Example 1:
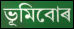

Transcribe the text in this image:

ভূমিবোৰ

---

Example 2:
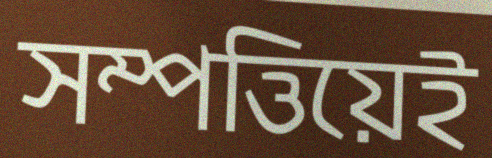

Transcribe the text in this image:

সম্পত্তিয়েই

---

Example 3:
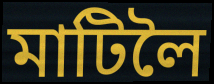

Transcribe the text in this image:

মাটিলৈ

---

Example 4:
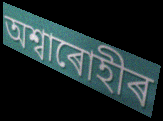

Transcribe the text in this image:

অশ্বাৰোহীৰ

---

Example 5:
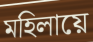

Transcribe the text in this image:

মহিলায়ে